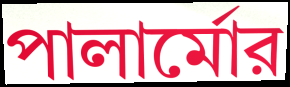
পালার্মোর